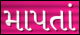
માપતાં